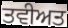
ਤਵੀਅਤ